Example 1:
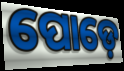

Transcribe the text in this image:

ପୋଡ଼େ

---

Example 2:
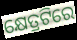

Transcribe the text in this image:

କ୍ଷେତ୍ରଟିରେ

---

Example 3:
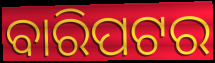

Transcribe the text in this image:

ବାରିପଟର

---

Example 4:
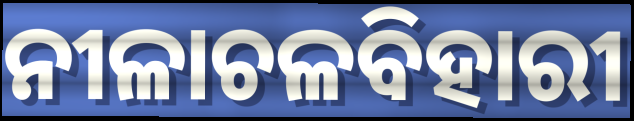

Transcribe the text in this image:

ନୀଳାଚଳବିହାରୀ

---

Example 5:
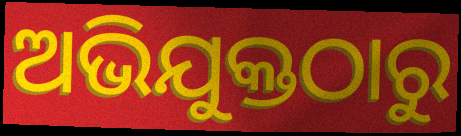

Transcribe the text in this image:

ଅଭିଯୁକ୍ତଠାରୁ